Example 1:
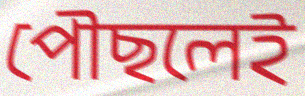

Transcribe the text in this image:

পৌছলেই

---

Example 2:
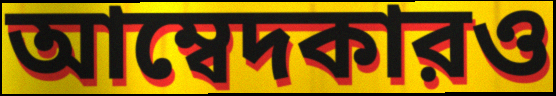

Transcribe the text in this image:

আম্বেদকারও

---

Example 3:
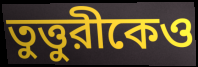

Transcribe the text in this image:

তুত্তুরীকেও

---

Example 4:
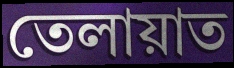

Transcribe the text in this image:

তেলায়াত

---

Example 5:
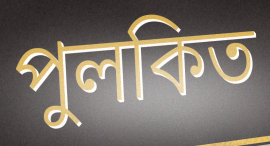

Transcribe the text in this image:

পুলকিত